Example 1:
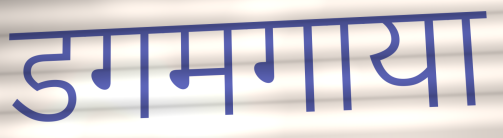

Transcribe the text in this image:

डगमगाया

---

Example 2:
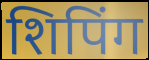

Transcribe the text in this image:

शिपिंग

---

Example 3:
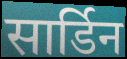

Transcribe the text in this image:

सार्डिन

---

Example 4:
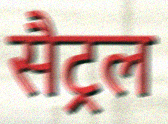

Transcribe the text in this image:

सैट्रल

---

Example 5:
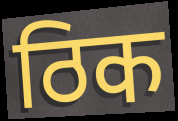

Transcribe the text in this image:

ठिक